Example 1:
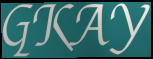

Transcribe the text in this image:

GKAY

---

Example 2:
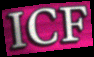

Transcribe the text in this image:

ICF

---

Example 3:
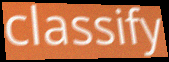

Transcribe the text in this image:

classify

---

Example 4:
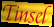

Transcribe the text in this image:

Tinsel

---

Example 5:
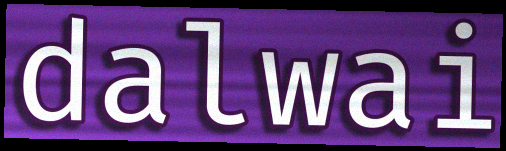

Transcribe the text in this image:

dalwai